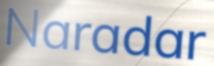
Naradar